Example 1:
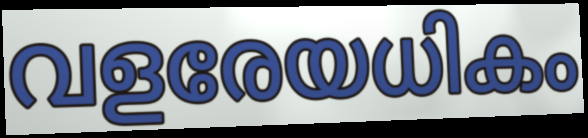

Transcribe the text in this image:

വളരേയധികം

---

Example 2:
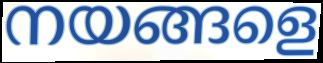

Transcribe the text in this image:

നയങ്ങളെ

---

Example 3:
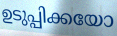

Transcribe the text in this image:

ഉടുപ്പിക്കയോ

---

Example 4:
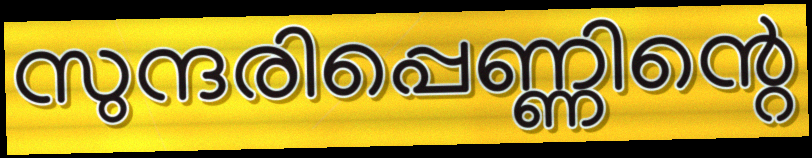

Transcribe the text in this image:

സുന്ദരിപ്പെണ്ണിന്റെ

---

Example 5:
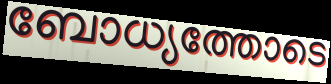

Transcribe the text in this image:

ബോധ്യത്തോടെ